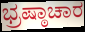
ಭ್ರಷ್ಠಾಚಾರ